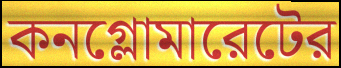
কনগ্লোমারেটের